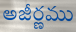
అజీర్ణము